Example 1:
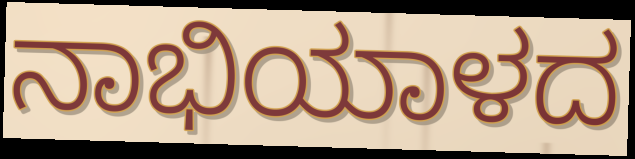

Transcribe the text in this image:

ನಾಭಿಯಾಳದ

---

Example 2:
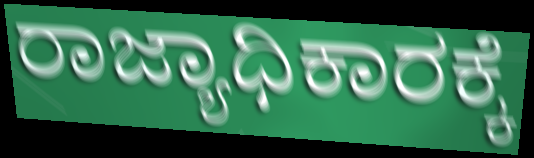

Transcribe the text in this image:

ರಾಜ್ಯಾಧಿಕಾರಕ್ಕೆ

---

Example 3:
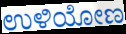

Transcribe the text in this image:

ಉಳಿಯೋಣ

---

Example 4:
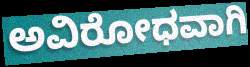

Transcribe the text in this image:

ಅವಿರೋಧವಾಗಿ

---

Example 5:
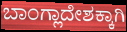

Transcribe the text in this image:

ಬಾಂಗ್ಲಾದೇಶಕ್ಕಾಗಿ